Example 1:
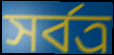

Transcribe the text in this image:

সর্বত্র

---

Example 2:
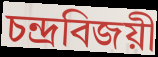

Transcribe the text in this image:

চন্দ্রবিজয়ী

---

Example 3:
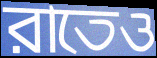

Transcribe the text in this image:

রাতেও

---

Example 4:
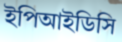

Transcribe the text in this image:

ইপিআইডিসি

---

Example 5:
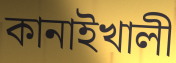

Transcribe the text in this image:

কানাইখালী